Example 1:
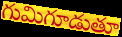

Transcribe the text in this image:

గుమిగూడుతూ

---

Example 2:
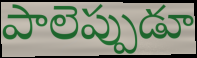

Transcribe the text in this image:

పాలెప్పుడూ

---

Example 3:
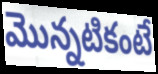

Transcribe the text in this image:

మొన్నటికంటే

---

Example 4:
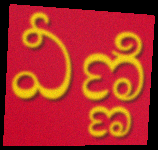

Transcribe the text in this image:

వీణ్ణి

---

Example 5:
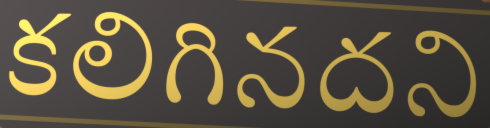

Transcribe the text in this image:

కలిగినదని